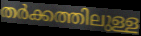
തർക്കത്തിലുള്ള